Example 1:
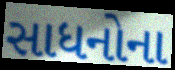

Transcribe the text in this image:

સાધનોના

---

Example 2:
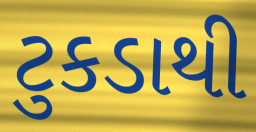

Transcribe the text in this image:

ટુકડાથી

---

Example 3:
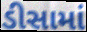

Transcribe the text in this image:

ડીસામાં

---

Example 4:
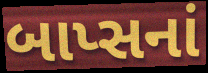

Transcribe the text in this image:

બાપ્સનાં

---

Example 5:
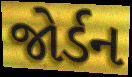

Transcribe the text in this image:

જોર્ડન